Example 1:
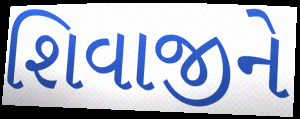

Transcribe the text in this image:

શિવાજીને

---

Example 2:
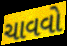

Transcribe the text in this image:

ચાવવો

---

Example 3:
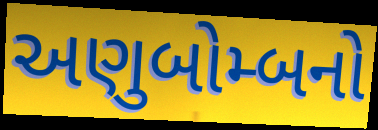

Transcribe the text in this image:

અણુબોમ્બનો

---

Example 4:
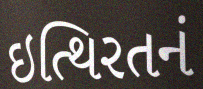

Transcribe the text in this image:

ઇત્થિરતનં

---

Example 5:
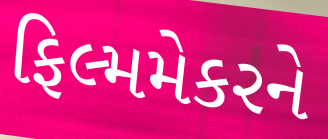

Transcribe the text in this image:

ફિલ્મમેકરને